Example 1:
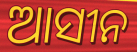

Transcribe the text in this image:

ଆସୀନ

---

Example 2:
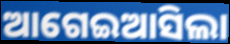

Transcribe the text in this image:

ଆଗେଇଆସିଲା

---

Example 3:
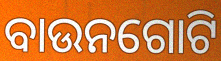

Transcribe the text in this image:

ବାଉନଗୋଟି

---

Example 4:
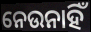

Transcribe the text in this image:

ନେଉନାହିଁ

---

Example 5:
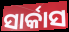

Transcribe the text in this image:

ସାର୍କାସ